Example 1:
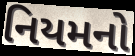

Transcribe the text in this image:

નિયમનો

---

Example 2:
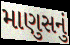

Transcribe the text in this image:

માણુસનું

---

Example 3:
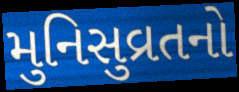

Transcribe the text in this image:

મુનિસુવ્રતનો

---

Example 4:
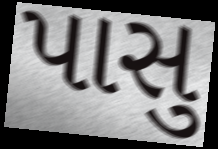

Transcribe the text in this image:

પાસુ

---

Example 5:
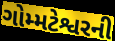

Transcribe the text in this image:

ગોમ્મટેશ્વરની